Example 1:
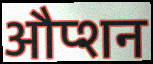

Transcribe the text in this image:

औप्शन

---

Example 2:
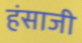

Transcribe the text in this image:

हंसाजी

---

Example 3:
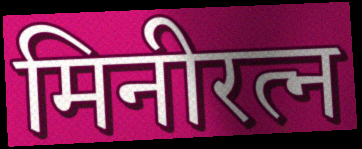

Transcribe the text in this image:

मिनीरत्न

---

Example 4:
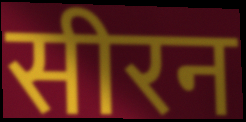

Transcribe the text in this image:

सीरन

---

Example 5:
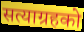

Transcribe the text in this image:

सत्याग्रहको